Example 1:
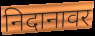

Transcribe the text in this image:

निदानावर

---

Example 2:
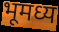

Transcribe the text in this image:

भूमध्य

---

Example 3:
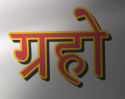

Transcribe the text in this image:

ग्रहो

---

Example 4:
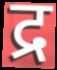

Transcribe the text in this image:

द्र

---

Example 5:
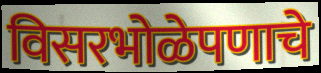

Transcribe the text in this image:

विसरभोळेपणाचे